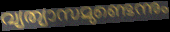
വ്യത്യാസമുണ്ടെന്നും